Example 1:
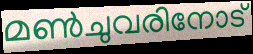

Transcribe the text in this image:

മൺചുവരിനോട്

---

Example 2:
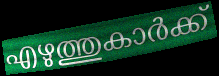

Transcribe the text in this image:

എഴുത്തുകാർക്ക്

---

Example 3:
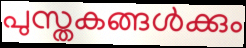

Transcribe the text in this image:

പുസ്തകങ്ങൾക്കും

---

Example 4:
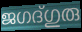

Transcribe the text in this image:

ജഗദ്ഗുരു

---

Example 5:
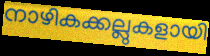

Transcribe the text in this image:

നാഴികക്കല്ലുകളായി